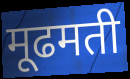
मूढमती